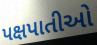
પક્ષપાતીઓ